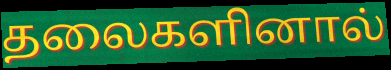
தலைகளினால்